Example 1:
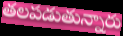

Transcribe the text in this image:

తలపడుతున్నారు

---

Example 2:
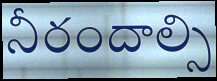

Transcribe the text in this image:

నీరందాల్సి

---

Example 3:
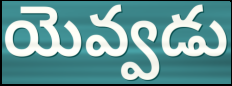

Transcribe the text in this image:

యెవ్వడు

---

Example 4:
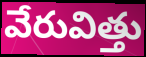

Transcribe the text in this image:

వేరువిత్తు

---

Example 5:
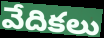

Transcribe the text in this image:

వేదికలు